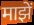
माझें